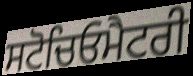
ਸਟੋਚਿਓਮੈਟਰੀ